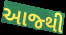
આજ્થી